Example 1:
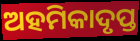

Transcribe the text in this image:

ଅହମିକାଦୃପ୍ତ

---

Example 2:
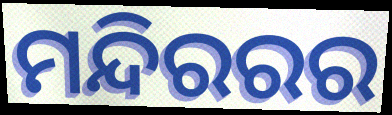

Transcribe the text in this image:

ମନ୍ଦିରରର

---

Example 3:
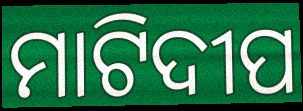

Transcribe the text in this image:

ମାଟିଦୀପ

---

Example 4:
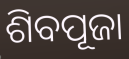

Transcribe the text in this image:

ଶିବପୂଜା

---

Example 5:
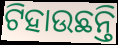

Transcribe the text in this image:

ଟିହାଉଛନ୍ତି